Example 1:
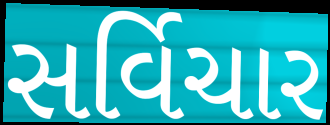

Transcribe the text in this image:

સર્વિચાર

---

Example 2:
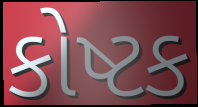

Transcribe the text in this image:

કોષ્ટક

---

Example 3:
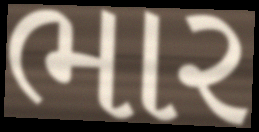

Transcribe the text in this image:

ભાર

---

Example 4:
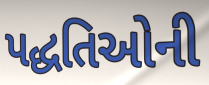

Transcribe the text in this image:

પદ્ધતિઓની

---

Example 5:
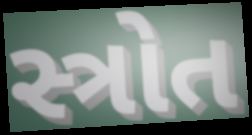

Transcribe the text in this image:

સ્ત્રોત